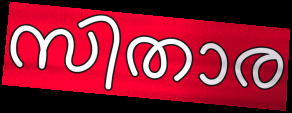
സിതാര